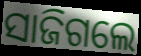
ସାଜିଗଲେ